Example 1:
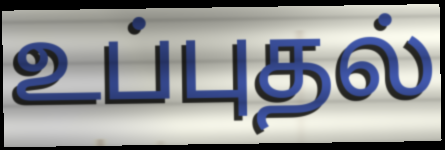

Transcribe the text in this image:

உப்புதல்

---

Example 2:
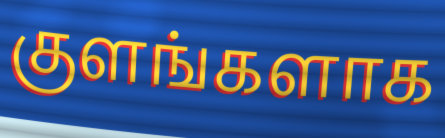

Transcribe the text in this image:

குளங்களாக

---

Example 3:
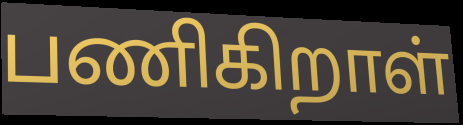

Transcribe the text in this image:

பணிகிறாள்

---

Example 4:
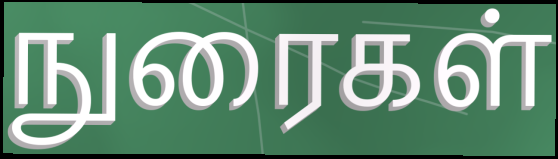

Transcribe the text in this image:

நுரைகள்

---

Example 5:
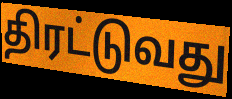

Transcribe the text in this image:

திரட்டுவது